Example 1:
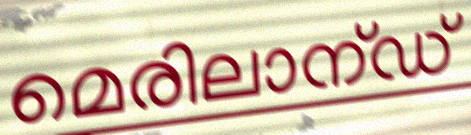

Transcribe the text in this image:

മെരിലാന്ഡ്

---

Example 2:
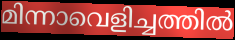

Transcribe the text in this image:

മിന്നാവെളിച്ചത്തിൽ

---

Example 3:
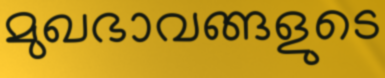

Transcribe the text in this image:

മുഖഭാവങ്ങളുടെ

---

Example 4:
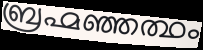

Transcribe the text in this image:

ബ്രഹ്മഞ്ഞത്ഥം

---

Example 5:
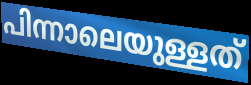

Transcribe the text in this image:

പിന്നാലെയുള്ളത്